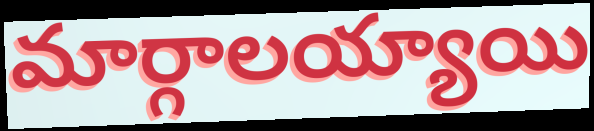
మార్గాలయ్యాయి